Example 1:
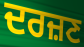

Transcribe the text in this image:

ਦਰਜ਼ਣ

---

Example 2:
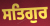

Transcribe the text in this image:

ਸਤਿਗੁਰ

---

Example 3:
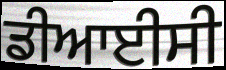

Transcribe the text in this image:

ਡੀਆਈਸੀ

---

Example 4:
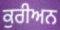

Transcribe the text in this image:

ਕੁਰੀਅਨ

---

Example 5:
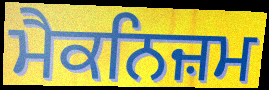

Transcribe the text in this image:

ਮੈਕਨਿਜ਼ਮ